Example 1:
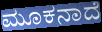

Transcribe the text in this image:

ಮೂಕನಾದೆ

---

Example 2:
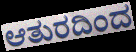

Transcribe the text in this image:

ಆತುರದಿಂದ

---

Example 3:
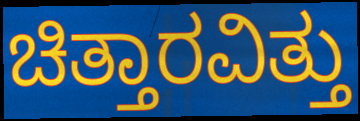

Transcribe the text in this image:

ಚಿತ್ತಾರವಿತ್ತು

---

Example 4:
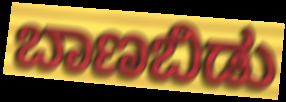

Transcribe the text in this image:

ಬಾಣಬಿಡು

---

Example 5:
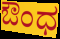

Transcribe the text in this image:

ಔಂಧ